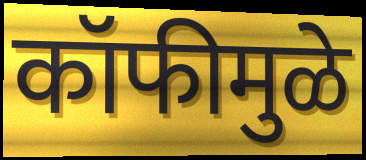
कॉफीमुळे